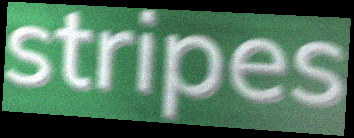
stripes